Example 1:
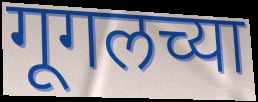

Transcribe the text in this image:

गूगलच्या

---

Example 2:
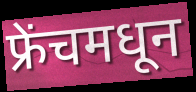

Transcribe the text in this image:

फ्रेंचमधून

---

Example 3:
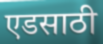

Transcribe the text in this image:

एडसाठी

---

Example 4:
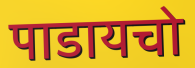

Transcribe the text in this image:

पाडायचो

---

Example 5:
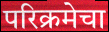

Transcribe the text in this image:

परिक्रमेचा